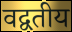
वद्वतीय